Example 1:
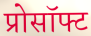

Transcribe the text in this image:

प्रोसॉफ्ट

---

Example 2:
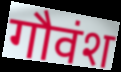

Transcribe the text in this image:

गौवंश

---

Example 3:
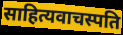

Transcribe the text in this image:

साहित्यवाचस्पति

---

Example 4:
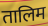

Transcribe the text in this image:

तालिम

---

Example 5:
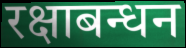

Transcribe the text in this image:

रक्षाबन्धन